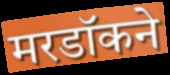
मरडॉकने